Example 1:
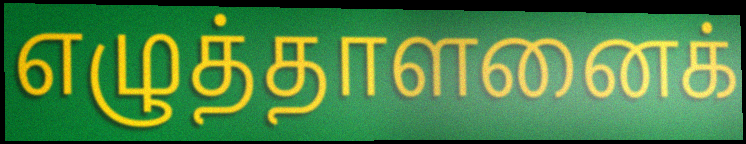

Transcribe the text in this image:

எழுத்தாளனைக்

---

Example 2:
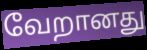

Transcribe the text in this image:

வேறானது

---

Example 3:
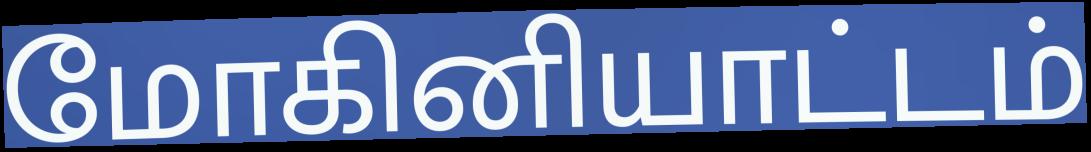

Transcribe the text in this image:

மோகினியாட்டம்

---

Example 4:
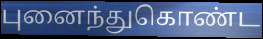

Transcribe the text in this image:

புனைந்துகொண்ட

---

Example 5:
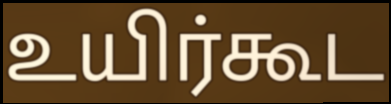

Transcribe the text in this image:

உயிர்கூட